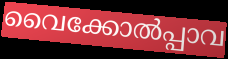
വൈക്കോൽപ്പാവ